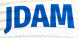
JDAM